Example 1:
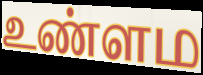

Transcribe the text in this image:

உண்ளம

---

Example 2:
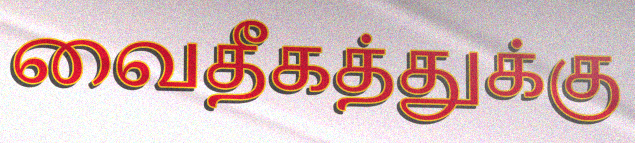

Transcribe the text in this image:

வைதீகத்துக்கு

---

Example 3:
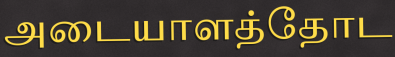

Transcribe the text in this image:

அடையாளத்தோட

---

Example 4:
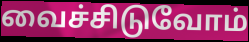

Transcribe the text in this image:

வைச்சிடுவோம்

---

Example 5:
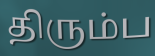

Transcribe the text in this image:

திரும்ப